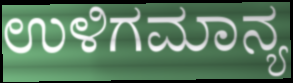
ಉಳಿಗಮಾನ್ಯ